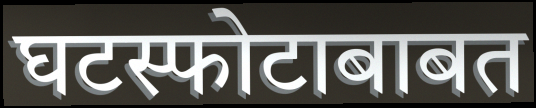
घटस्फोटाबाबत